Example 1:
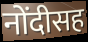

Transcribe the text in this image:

नोंदीसह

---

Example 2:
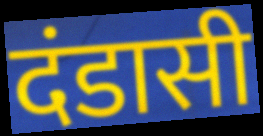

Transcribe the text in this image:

दंडासी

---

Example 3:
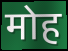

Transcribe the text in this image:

मोह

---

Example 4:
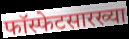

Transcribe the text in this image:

फॉस्फेटसारख्या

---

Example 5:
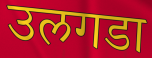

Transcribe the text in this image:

उलगडा